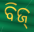
ବିଜ୍